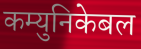
कम्युनिकेबल